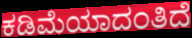
ಕಡಿಮೆಯಾದಂತಿದೆ